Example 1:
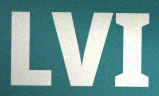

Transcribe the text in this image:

LVI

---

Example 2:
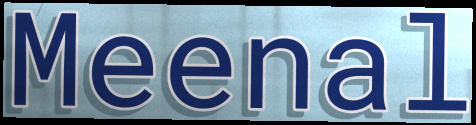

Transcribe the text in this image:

Meenal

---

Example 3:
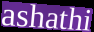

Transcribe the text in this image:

ashathi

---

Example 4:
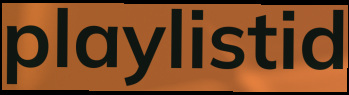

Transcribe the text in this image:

playlistid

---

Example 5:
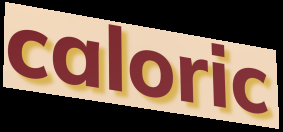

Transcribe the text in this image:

caloric